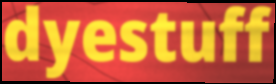
dyestuff